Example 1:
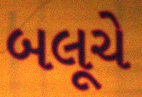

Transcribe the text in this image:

બલૂચે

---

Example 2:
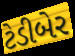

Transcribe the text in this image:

ટેડીબેર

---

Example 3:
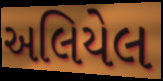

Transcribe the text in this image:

અલિયેલ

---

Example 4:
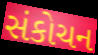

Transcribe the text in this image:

સંકોચન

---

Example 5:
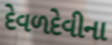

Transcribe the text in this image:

દેવળદેવીના